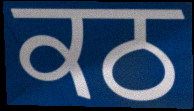
ਕਠ